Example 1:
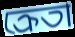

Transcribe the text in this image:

ক্ৰেতা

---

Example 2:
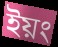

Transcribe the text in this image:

ইয়ং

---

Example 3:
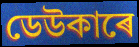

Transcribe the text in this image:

ডেউকাৰে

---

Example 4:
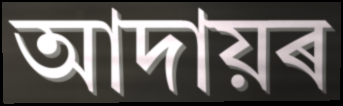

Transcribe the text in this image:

আদায়ৰ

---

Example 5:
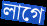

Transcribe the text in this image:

লাগে